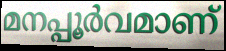
മനപ്പൂർവമാണ്